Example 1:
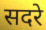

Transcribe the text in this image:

सदरे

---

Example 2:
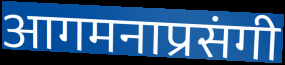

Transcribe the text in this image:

आगमनाप्रसंगी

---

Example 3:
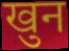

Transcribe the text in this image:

खुन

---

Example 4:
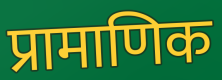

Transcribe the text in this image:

प्रामाणिक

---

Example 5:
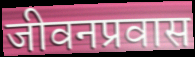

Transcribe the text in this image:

जीवनप्रवास